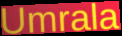
Umrala